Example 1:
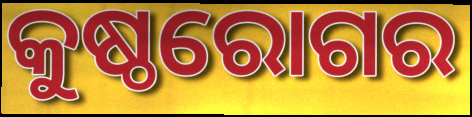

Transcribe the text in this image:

କୁଷ୍ଠରୋଗର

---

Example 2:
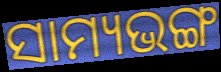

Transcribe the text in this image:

ସାମ୍ଯଭଙ୍ଗ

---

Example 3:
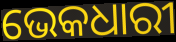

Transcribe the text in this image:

ଭେକଧାରୀ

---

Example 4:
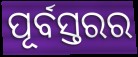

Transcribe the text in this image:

ପୂର୍ବସ୍ତରର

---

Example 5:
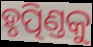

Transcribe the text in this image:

ହୃତ୍ପିଣ୍ତକୁ